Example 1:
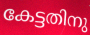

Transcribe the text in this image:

കേട്ടതിനു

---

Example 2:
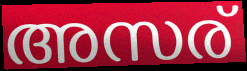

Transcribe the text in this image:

അസര്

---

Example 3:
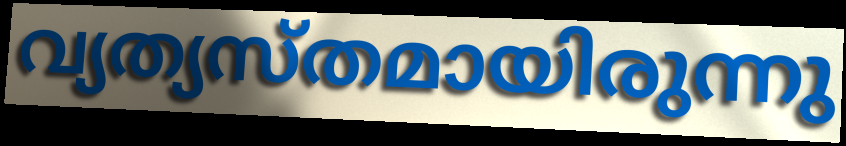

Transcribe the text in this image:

വ്യത്യസ്തമായിരുന്നു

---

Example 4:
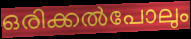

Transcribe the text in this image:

ഒരിക്കൽപോലും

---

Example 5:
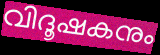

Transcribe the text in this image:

വിദൂഷകനും